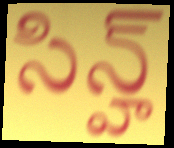
సిన్హ్